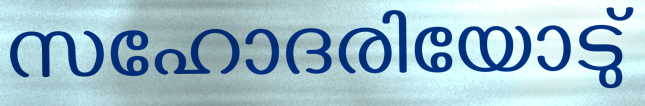
സഹോദരിയോടു്